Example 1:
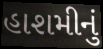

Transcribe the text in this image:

હાશમીનું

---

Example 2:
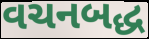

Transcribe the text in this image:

વચનબદ્ધ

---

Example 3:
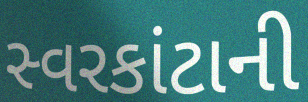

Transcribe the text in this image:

સ્વરકાંટાની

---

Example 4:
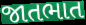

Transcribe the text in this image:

જાતભાત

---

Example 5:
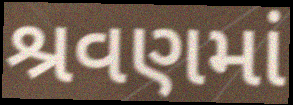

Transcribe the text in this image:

શ્રવણમાં